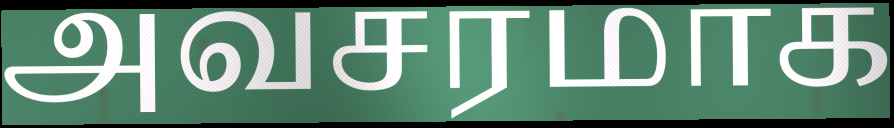
அவசரமாக